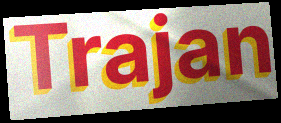
Trajan